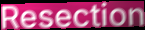
Resection